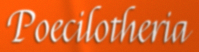
Poecilotheria